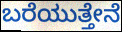
ಬರೆಯುತ್ತೇನೆ